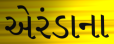
એરંડાના